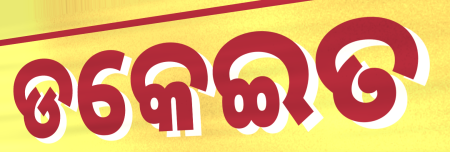
ଡକେଇତ